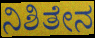
ನಿಶಿತೇನ